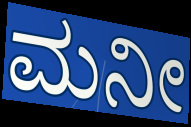
ಮನೀ